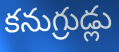
కనుగ్రుడ్లు